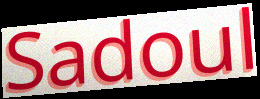
Sadoul